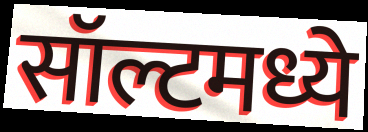
सॉल्टमध्ये